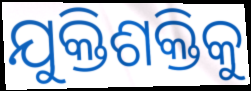
ଯୁକ୍ତିଶକ୍ତିକୁ